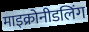
माइक्रोनीडलिंग